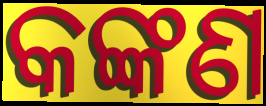
କଙ୍କଣ